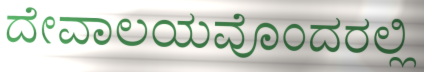
ದೇವಾಲಯವೊಂದರಲ್ಲಿ